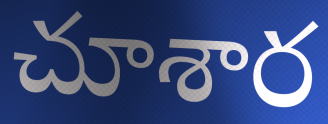
చూశార